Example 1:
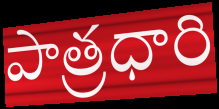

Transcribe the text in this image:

పాత్రధారి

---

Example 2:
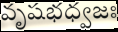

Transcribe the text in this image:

వృషభధ్వజః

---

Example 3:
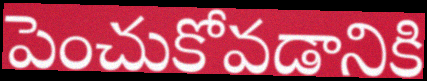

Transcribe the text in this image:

పెంచుకోవడానికి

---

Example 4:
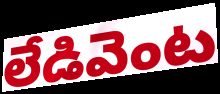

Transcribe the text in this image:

లేడివెంట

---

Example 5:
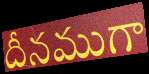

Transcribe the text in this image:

దీనముగా